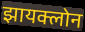
झायक्लोन